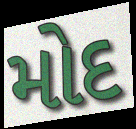
મોદ